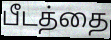
பீடத்தை